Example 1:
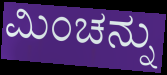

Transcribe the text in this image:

ಮಿಂಚನ್ನು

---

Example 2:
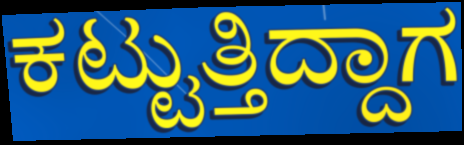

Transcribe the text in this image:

ಕಟ್ಟುತ್ತಿದ್ದಾಗ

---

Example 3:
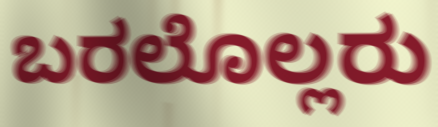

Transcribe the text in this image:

ಬರಲೊಲ್ಲರು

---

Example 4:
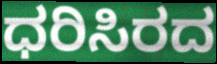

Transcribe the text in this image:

ಧರಿಸಿರದ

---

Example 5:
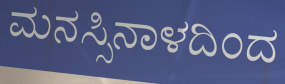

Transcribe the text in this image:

ಮನಸ್ಸಿನಾಳದಿಂದ